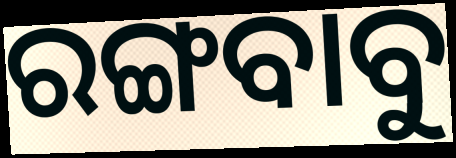
ରଙ୍ଗବାବୁ